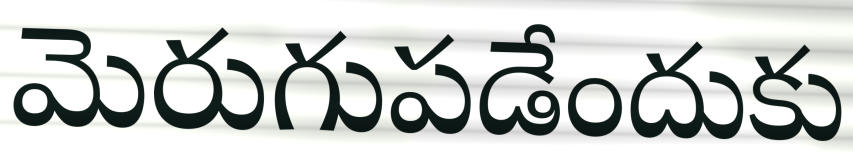
మెరుగుపడేందుకు